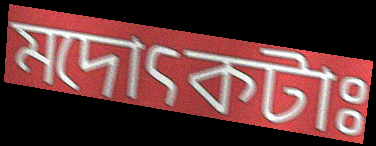
মদোৎকটাঃ